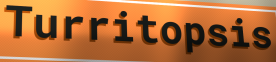
Turritopsis